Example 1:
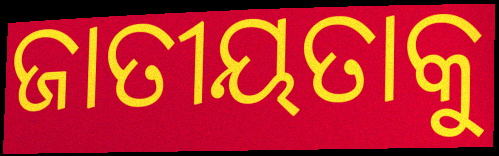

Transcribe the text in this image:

ଜାତୀୟତାକୁ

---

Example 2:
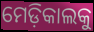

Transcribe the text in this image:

ମେଡ଼ିକାଲକୁ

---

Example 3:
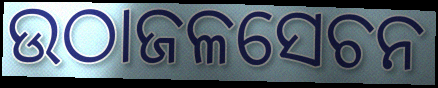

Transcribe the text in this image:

ଉଠାଜଳସେଚନ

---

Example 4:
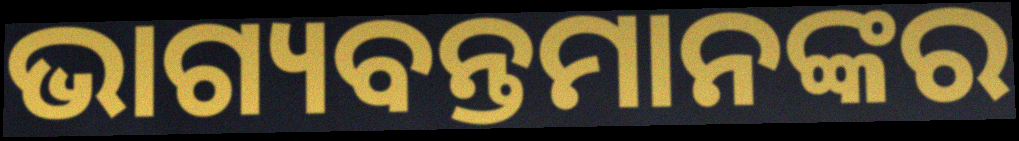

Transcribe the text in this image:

ଭାଗ୍ୟବନ୍ତମାନଙ୍କର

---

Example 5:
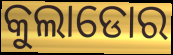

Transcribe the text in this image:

କୁଲାଡୋର